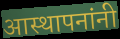
आस्थापनांनी